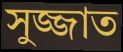
সুজ্জাত